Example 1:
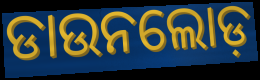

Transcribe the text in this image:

ଡାଉନଲୋଡ଼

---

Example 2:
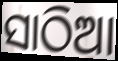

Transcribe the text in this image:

ସାଠିଆ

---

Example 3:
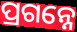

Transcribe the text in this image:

ପ୍ରଗନ୍ନେ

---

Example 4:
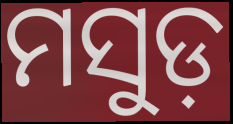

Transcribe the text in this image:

ମସୁଡ଼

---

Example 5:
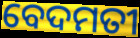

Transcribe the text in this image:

ବେଦମତୀ